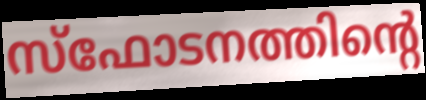
സ്ഫോടനത്തിന്റെ